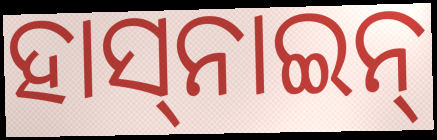
ହାସ୍‌ନାଇନ୍